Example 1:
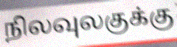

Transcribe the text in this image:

நிலவுலகுக்கு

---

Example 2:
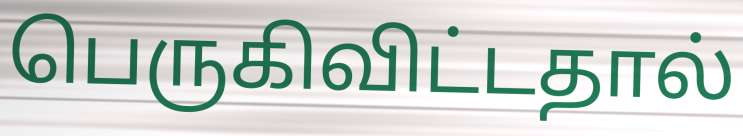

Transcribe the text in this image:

பெருகிவிட்டதால்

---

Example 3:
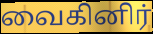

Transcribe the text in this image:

வைகினிர்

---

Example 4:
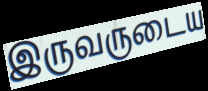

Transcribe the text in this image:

இருவருடைய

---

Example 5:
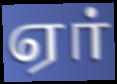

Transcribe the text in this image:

ஏர்